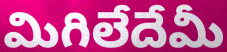
మిగిలేదేమీ